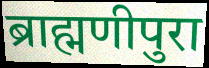
ब्राह्मणीपुरा